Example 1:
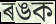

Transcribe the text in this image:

ৰঙক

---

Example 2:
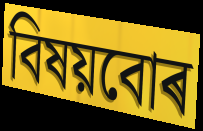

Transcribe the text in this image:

বিষয়বোৰ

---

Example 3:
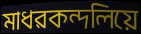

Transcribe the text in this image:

মাধৱকন্দলিয়ে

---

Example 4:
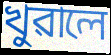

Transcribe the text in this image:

খুৱালে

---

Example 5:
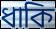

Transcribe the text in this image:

ধাকি